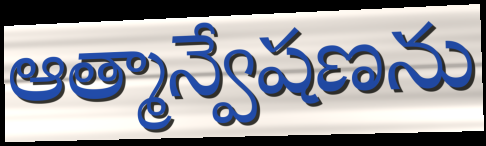
ఆత్మాన్వేషణను